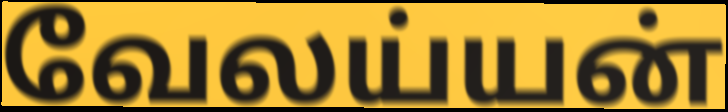
வேலய்யன்